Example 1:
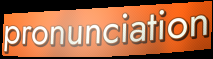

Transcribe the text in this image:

pronunciation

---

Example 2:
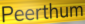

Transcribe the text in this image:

Peerthum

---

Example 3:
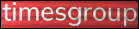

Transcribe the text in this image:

timesgroup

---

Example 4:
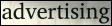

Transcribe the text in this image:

advertising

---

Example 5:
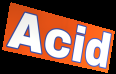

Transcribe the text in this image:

Acid